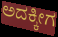
ಅದಕ್ಕೀಗ